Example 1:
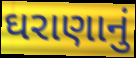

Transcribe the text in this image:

ઘરાણાનું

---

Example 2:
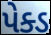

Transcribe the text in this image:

પેક્ડ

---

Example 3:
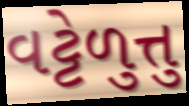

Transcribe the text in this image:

વટ્ટેળુત્તુ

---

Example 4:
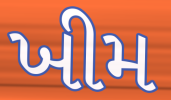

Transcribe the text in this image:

ખીમ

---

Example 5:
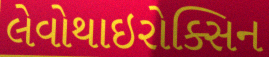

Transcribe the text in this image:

લેવોથાઇરોક્સિન